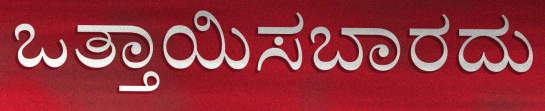
ಒತ್ತಾಯಿಸಬಾರದು